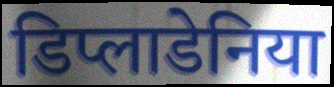
डिप्लाडेनिया